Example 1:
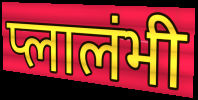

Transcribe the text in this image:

प्लालंभी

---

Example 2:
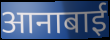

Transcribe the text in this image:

आनाबाई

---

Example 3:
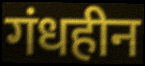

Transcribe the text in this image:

गंधहीन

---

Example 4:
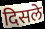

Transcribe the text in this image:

दिसले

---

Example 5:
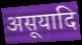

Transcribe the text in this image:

असूयादि